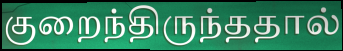
குறைந்திருந்ததால்